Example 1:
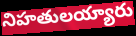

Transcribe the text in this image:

నిహతులయ్యారు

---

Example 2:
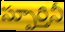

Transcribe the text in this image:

స్పూర్తినీ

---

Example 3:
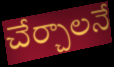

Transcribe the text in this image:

చేర్చాలనే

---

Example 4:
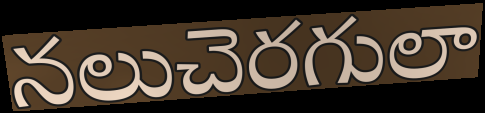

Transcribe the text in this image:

నలుచెరగులా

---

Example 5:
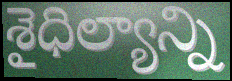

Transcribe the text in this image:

శైధిల్యాన్ని